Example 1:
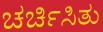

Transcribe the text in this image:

ಚರ್ಚಿಸಿತು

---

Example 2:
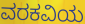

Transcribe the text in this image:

ವರಕವಿಯ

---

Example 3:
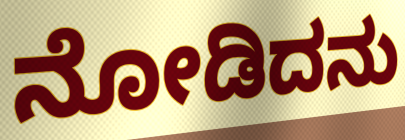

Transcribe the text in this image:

ನೋಡಿದನು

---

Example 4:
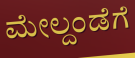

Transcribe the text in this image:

ಮೇಲ್ದಂಡೆಗೆ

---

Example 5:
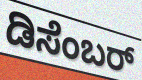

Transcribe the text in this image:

ಡಿಸೆಂಬರ್